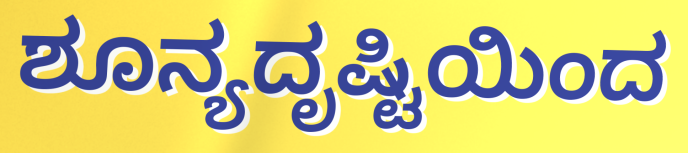
ಶೂನ್ಯದೃಷ್ಟಿಯಿಂದ